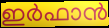
ഇർഫാൻ